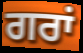
ਗਰਾਂ